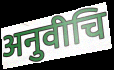
अनुवीचि